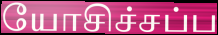
யோசிச்சப்ப